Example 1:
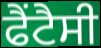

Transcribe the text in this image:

ਫੈਂਟੈਸੀ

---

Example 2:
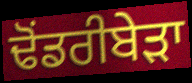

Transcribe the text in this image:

ਢੋਂਡਰੀਬੇੜਾ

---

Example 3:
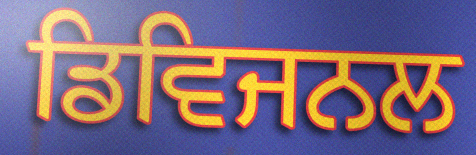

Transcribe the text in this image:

ਡਿਵਿਜਨਲ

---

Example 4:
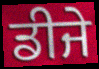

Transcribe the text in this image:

ਡੀਜੇ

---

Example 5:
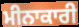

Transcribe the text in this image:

ਮੀਨਾਕਾਰੀ